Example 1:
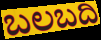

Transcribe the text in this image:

ಬಲಬದಿ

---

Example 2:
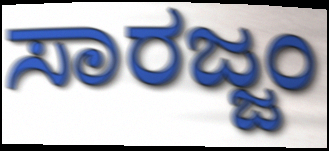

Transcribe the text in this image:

ಸಾರಜ್ಜಂ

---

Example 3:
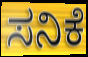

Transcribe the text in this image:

ಸನಿಕೆ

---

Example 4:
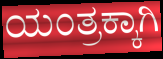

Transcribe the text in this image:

ಯಂತ್ರಕ್ಕಾಗಿ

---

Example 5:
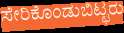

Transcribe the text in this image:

ಸೇರಿಕೊಂಡುಬಿಟ್ಟರು